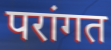
परांगत